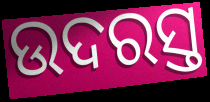
ଉଦରସ୍ତ